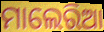
ମାଲେରିଆ